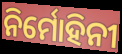
ନିର୍ମୋହିନୀ